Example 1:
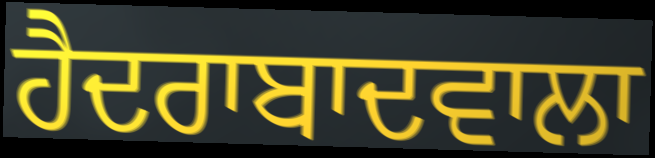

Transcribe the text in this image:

ਹੈਦਰਾਬਾਦਵਾਲਾ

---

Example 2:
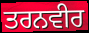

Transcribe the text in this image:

ਤਰਨਵੀਰ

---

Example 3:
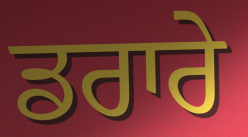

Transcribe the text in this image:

ਡਰਾਰੇ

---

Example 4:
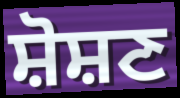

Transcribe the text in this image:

ਸ਼ੋਸ਼ਣ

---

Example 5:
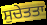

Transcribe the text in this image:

ਸੁਚੇਤਤਾ